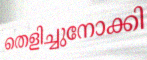
തെളിച്ചുനോക്കി